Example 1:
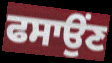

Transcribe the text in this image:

ਫਸਾਉਂਣ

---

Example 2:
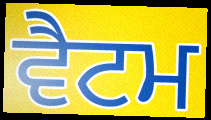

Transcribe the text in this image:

ਵੈਟਮ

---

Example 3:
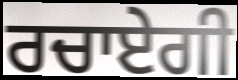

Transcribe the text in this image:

ਰਚਾਏਗੀ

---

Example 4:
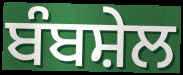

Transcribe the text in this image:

ਬੰਬਸ਼ੇਲ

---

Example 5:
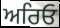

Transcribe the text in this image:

ਅਰਿਓ